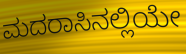
ಮದರಾಸಿನಲ್ಲಿಯೇ